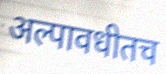
अल्पावधीतच